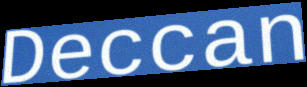
Deccan